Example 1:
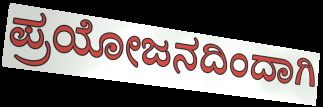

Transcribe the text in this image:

ಪ್ರಯೋಜನದಿಂದಾಗಿ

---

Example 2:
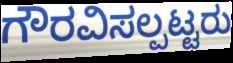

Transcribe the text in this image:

ಗೌರವಿಸಲ್ಪಟ್ಟರು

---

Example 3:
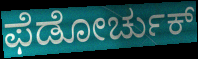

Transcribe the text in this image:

ಫೆಡೋರ್ಚುಕ್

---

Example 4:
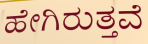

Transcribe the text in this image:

ಹೇಗಿರುತ್ತವೆ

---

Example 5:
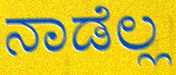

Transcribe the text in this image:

ನಾಡೆಲ್ಲ